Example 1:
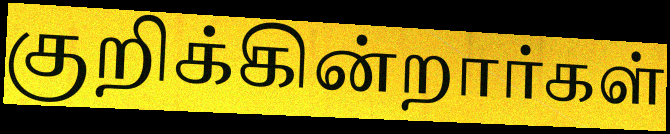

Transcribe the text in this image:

குறிக்கின்றார்கள்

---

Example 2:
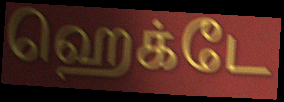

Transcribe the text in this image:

ஹெக்டே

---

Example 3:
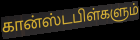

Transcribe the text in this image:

கான்ஸ்டபிள்களும்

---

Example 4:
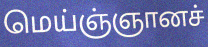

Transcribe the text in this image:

மெய்ஞ்ஞானச்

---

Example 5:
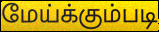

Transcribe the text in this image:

மேய்க்கும்படி